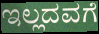
ಇಲ್ಲದವಗೆ